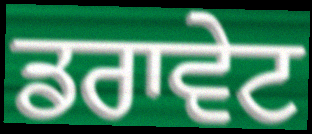
ਡਰਾਵੇਟ